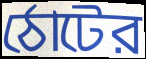
ঠোটের